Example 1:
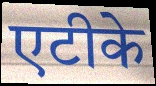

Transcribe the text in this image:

एटीके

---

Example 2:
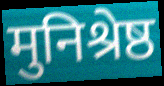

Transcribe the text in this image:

मुनिश्रेष्ठ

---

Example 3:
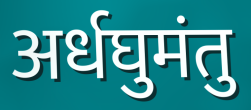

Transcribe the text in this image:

अर्धघुमंतु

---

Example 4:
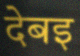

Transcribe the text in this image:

देबइ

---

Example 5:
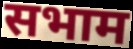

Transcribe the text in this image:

सभाम